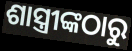
ଶାସ୍ତ୍ରୀଙ୍କଠାରୁ